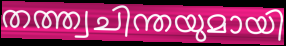
തത്ത്വചിന്തയുമായി